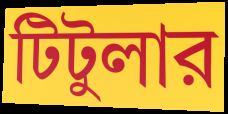
টিটুলার